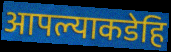
आपल्याकडेहि